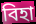
বিহা